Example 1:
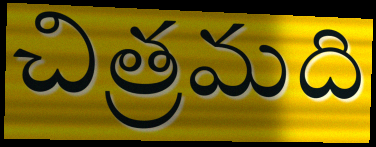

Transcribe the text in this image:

చిత్రమది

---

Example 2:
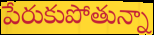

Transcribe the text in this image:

పేరుకుపోతున్నా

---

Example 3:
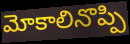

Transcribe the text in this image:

మోకాలినొప్పి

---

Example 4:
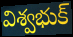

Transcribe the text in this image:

విశ్వభుక్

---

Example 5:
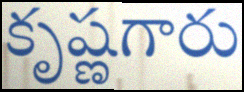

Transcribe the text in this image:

కృష్ణగారు